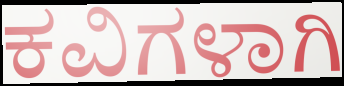
ಕವಿಗಳಾಗಿ